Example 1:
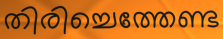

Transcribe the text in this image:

തിരിച്ചെത്തേണ്ട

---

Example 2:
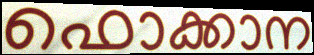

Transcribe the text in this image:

ഫൊക്കാന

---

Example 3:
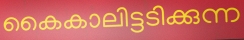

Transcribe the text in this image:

കൈകാലിട്ടടിക്കുന്ന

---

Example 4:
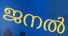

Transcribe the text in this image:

ജനൽ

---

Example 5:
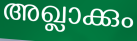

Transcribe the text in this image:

അഖ്ലാക്കും